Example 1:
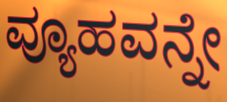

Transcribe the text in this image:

ವ್ಯೂಹವನ್ನೇ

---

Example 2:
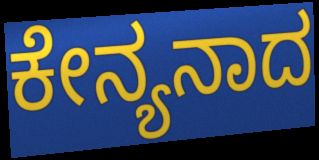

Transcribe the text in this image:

ಕೇನ್ಯನಾದ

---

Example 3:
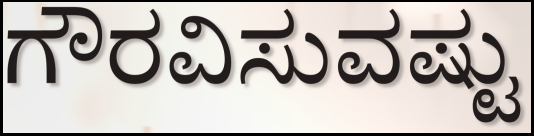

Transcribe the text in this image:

ಗೌರವಿಸುವಷ್ಟು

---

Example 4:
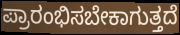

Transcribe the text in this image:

ಪ್ರಾರಂಭಿಸಬೇಕಾಗುತ್ತದೆ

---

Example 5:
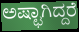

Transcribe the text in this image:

ಅಷ್ಟಾಗಿದ್ದರೆ